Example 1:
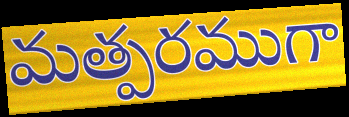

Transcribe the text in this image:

మత్పరముగా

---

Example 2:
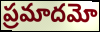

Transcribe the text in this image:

ప్రమాదమో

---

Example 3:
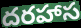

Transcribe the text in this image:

దరహాస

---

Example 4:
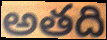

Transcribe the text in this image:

అతది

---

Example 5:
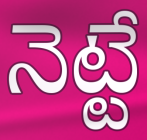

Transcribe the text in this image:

నెట్టే